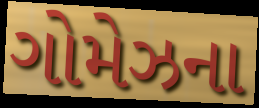
ગોમેઝના